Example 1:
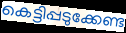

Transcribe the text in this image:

കെട്ടിപ്പടുക്കേണ്ട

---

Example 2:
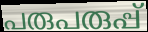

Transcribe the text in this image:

പരുപരുപ്പ്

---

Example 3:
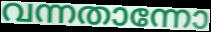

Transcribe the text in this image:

വന്നതാന്നോ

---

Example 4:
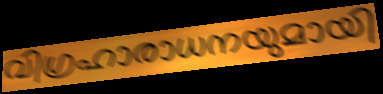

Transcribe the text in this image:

വിഗ്രഹാരാധനയുമായി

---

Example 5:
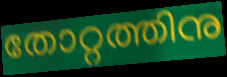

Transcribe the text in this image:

തോറ്റത്തിനു